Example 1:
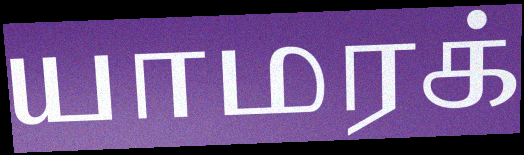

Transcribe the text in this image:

யாமரக்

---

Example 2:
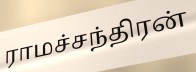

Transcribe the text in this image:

ராமச்சந்திரன்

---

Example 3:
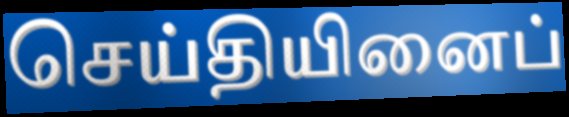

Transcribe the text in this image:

செய்தியினைப்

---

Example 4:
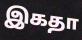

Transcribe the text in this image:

இகதா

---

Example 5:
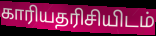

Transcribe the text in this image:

காரியதரிசியிடம்